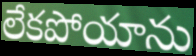
లేకపోయాను